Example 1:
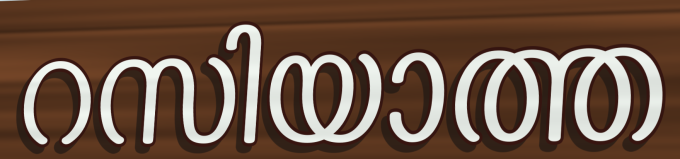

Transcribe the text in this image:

റസിയാത്ത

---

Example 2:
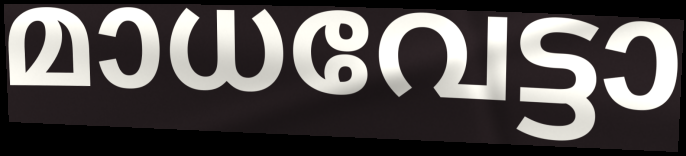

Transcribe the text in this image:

മാധവേട്ടാ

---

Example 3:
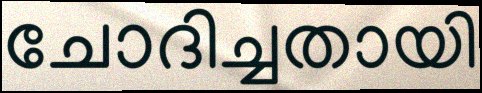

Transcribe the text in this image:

ചോദിച്ചതായി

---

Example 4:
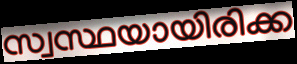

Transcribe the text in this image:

സ്വസ്ഥയായിരിക്ക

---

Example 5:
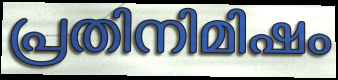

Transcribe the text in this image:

പ്രതിനിമിഷം